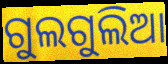
ଗୁଲଗୁଲିଆ